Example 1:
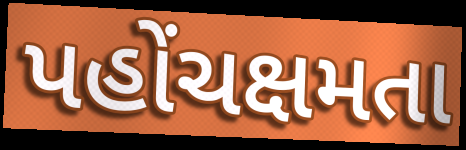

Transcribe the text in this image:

પહોંચક્ષમતા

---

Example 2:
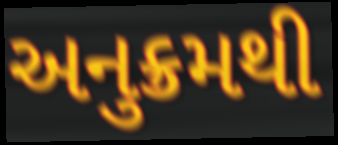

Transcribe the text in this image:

અનુક્રમથી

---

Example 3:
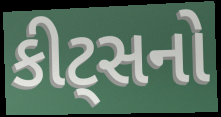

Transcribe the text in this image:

કીટ્સનો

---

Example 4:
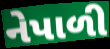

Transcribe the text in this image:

નેપાળી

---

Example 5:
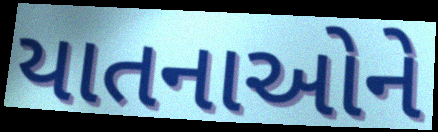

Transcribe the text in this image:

યાતનાઓને